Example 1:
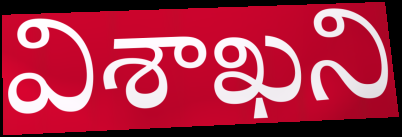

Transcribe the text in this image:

విశాఖని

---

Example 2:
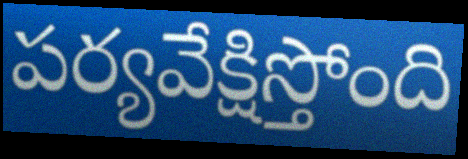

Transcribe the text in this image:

పర్యవేక్షిస్తోంది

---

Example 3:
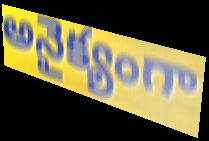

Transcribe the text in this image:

అనైక్యంగా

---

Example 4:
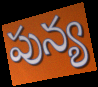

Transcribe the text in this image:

పున్య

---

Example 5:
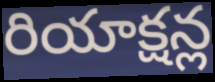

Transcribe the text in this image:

రియాక్షన్ల